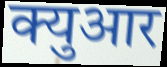
क्युआर